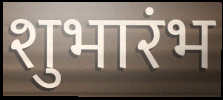
शुभारंभ